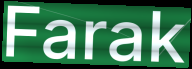
Farak